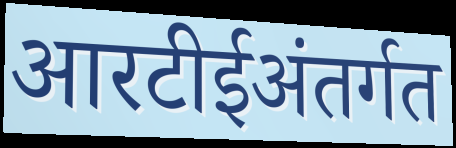
आरटीईअंतर्गत